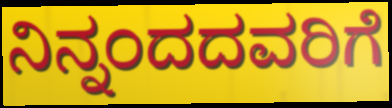
ನಿನ್ನಂದದವರಿಗೆ